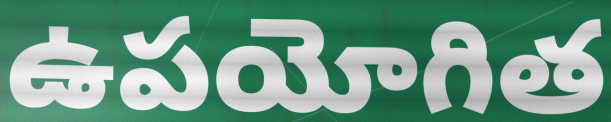
ఉపయోగిత